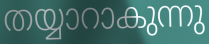
തയ്യാറാകുന്നു